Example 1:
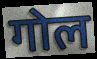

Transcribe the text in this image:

गोल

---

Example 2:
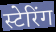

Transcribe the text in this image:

स्टेरिंग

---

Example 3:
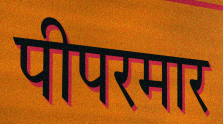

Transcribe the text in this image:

पीपरमार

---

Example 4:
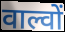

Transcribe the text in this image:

वाल्वों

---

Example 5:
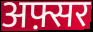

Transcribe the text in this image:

अफ़्सर